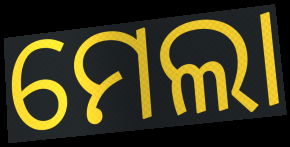
ମେଲା